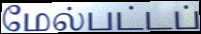
மேல்பட்டப்